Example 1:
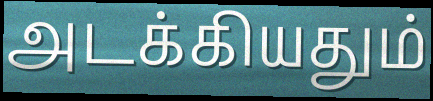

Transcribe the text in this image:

அடக்கியதும்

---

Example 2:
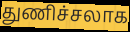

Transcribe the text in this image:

துணிச்சலாக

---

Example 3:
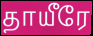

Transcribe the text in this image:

தாயீரே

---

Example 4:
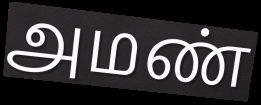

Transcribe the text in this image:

அமண்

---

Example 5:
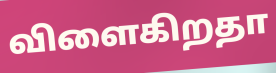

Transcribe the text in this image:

விளைகிறதா